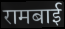
रामबाई